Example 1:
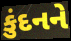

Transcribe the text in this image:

કુંદનને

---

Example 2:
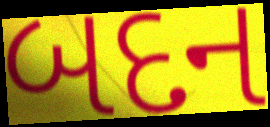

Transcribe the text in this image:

બદન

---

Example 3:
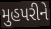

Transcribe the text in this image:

મુહપરીને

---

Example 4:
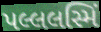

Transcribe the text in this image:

પલ્લલસ્મિં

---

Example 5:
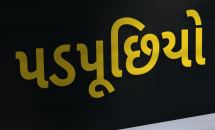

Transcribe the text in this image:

પડપૂછિયો